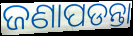
ଜଣାପଡନ୍ତା